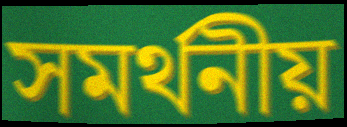
সমর্থনীয়